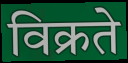
विक्रते